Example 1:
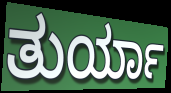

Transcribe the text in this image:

ತುರ್ಯಾ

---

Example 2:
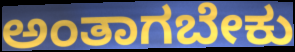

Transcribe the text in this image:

ಅಂತಾಗಬೇಕು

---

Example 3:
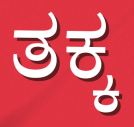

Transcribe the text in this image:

ತಕ್ಕ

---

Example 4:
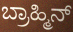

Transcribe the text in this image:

ಬ್ರಾಹ್ಮಿನ್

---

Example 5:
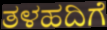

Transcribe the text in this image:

ತಳಹದಿಗೆ